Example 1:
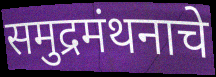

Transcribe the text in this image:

समुद्रमंथनाचे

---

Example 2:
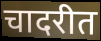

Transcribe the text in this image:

चादरीत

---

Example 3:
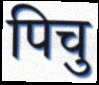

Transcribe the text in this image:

पिचु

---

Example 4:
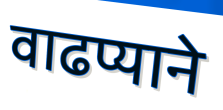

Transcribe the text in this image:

वाढप्याने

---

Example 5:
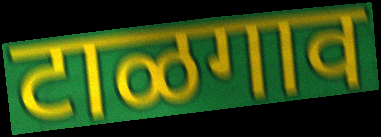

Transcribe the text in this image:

टाळगाव